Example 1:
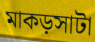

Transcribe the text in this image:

মাকড়সাটা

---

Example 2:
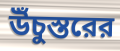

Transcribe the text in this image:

উঁচুস্তরের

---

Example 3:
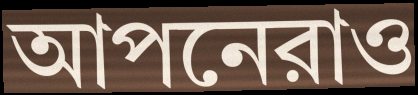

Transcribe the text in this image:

আপনেরাও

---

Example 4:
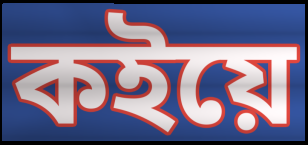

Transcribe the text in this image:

কইয়ে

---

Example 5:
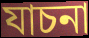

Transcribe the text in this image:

যাচনা